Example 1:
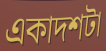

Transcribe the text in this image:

একাদশটা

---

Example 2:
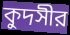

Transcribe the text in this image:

কুদসীর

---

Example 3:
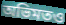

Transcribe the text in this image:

অভিমতও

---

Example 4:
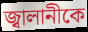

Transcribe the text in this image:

জ্বালানীকে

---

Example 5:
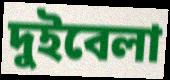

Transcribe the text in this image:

দুইবেলা